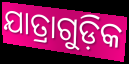
ଯାତ୍ରାଗୁଡ଼ିକ